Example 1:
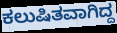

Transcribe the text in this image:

ಕಲುಷಿತವಾಗಿದ್ದ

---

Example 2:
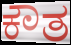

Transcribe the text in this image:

ಕೌತ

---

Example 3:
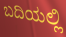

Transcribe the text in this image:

ಬದಿಯಲ್ಲಿ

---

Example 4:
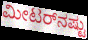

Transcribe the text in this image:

ಮೀಟರ್‌ನಷ್ಟು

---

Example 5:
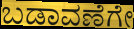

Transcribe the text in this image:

ಬಡಾವಣೆಗೇ